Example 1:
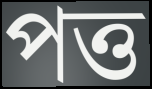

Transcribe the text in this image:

পত্ত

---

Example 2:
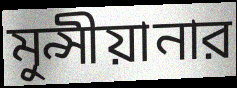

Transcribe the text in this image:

মুন্সীয়ানার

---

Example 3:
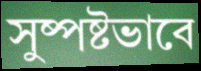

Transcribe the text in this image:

সুষ্পষ্টভাবে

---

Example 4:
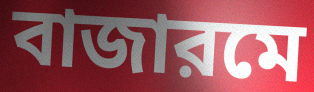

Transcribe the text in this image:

বাজারমে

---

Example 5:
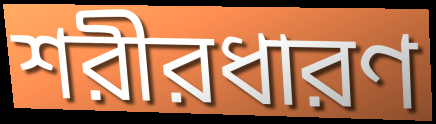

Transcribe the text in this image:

শরীরধারণ